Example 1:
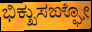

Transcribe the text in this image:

ಭಿಕ್ಖುಸಙ್ಘೋ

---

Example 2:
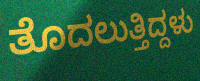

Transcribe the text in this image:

ತೊದಲುತ್ತಿದ್ದಳು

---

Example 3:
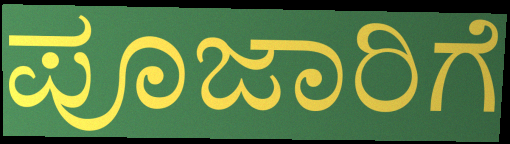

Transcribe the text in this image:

ಪೂಜಾರಿಗೆ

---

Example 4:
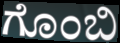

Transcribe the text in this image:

ಗೊಂಬಿ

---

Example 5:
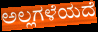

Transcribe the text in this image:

ಅಲ್ಲಗಳೆಯದೆ